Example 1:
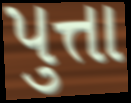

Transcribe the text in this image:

પુત્તા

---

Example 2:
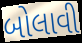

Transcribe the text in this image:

બોલાવી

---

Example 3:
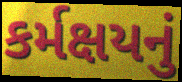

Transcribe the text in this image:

કર્મક્ષયનું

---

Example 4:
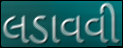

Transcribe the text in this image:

લડાવવી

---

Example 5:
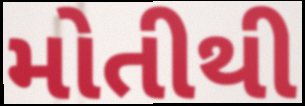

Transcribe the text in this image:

મોતીથી